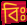
বিঃ